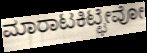
ಮಾರಾಟಕಿಟ್ಟೇವೋ